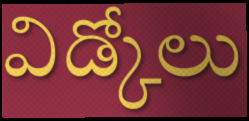
విడ్కోలు